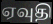
ஏவுதி